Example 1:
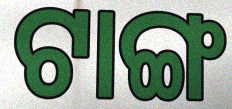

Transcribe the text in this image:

ଟାଙ୍ଗ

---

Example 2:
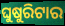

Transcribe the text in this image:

ଘୁଷୁରିଟାର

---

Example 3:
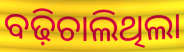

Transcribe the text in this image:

ବଢ଼ିଚାଲିଥିଲା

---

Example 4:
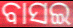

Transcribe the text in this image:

ବାସଇ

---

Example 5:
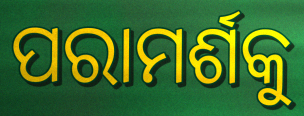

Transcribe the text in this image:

ପରାମର୍ଶକୁ